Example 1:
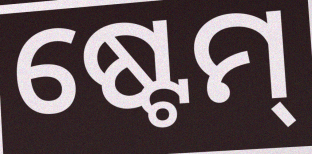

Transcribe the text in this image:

ଷ୍ଟେମ୍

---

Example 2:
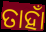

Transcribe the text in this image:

ତାହାଁ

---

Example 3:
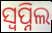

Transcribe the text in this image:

ସ୍ୱପ୍ନିଲ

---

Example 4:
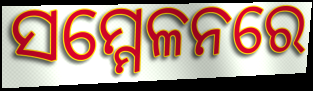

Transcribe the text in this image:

ସମ୍ମେଳନରେ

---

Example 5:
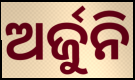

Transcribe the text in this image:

ଅର୍ଜୁନି